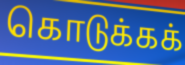
கொடுக்கக்